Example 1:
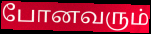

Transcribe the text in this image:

போனவரும்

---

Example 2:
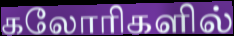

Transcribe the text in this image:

கலோரிகளில்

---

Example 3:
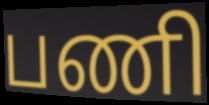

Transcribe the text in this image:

பணி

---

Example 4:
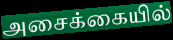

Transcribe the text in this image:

அசைக்கையில்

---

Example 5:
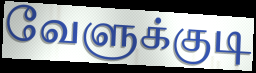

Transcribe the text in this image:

வேளுக்குடி